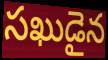
సఖుడైన